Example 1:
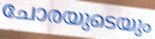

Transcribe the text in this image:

ചോരയുടെയും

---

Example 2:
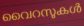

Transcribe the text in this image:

വൈറസുകൾ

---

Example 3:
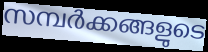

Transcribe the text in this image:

സമ്പർക്കങ്ങളുടെ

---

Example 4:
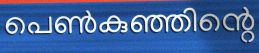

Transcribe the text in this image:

പെൺകുഞ്ഞിന്റെ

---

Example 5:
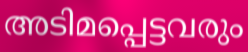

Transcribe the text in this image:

അടിമപ്പെട്ടവരും